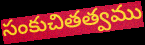
సంకుచితత్వము